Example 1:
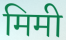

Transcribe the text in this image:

मिमी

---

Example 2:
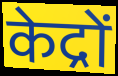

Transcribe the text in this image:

केद्रों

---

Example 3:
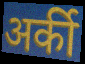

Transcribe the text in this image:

अर्की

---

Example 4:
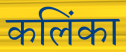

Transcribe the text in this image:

कलिंका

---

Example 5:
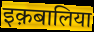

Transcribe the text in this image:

इक़बालिया